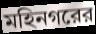
মহিনগরের